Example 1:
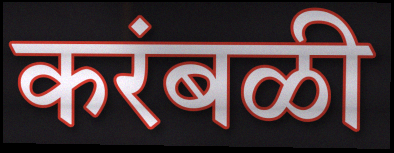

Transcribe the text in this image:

करंबळी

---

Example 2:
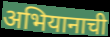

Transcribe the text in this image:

अभियानाची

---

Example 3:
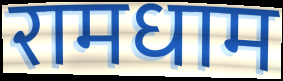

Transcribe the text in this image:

रामधाम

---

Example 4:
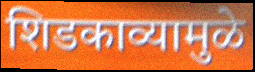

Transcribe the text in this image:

शिडकाव्यामुळे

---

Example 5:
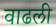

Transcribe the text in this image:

वाढली